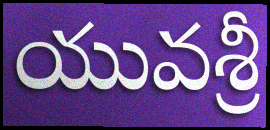
యువశ్రీ